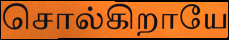
சொல்கிறாயே